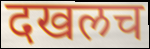
दखलच